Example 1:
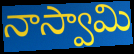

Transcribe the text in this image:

నాస్వామి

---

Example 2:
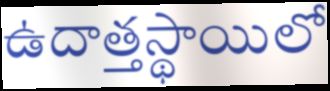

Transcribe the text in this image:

ఉదాత్తస్థాయిలో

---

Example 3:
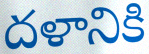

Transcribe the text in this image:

దళానికి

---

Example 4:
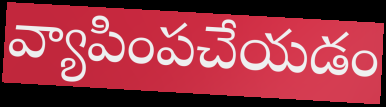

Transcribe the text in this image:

వ్యాపింపచేయడం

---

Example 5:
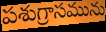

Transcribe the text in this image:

పశుగ్రాసమును